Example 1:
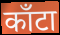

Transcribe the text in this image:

काँटा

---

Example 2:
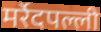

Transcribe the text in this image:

मर्रेदपल्ली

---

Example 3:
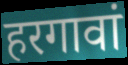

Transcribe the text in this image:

हरगावां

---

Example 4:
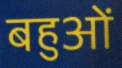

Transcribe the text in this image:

बहुओं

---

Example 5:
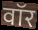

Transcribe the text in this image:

वॉर